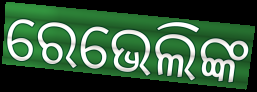
ରେଭେଲିଙ୍କ